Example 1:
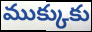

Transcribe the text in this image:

ముక్కుకు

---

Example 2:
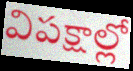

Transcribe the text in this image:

విపక్షాల్లో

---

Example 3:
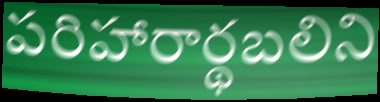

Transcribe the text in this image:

పరిహారార్థబలిని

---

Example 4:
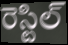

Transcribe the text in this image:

రెస్టిల్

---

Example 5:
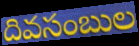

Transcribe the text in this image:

దివసంబుల